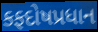
કફદોષપ્રધાન